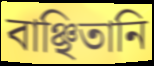
বাঞ্ছিতানি